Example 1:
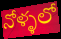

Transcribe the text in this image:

నోళ్ళలో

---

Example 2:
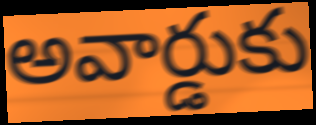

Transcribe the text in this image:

అవార్డుకు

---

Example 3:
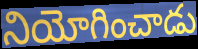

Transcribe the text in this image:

నియోగించాడు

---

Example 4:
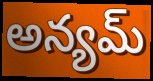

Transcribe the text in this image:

అన్యమ్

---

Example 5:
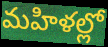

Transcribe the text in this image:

మహిళల్లో